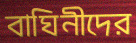
বাঘিনীদের